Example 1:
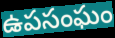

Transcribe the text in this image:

ఉపసంఘం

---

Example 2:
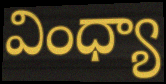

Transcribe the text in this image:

వింధ్యా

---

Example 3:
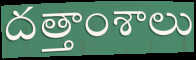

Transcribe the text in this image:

దత్తాంశాలు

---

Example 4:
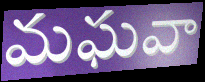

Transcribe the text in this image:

మఘవా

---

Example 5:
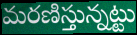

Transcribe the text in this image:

మరణిస్తున్నట్టు